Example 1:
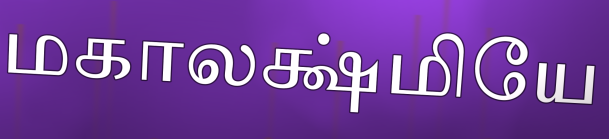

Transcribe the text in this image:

மகாலக்ஷ்மியே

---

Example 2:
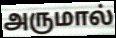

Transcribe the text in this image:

அருமால்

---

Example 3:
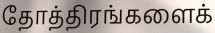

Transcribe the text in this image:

தோத்திரங்களைக்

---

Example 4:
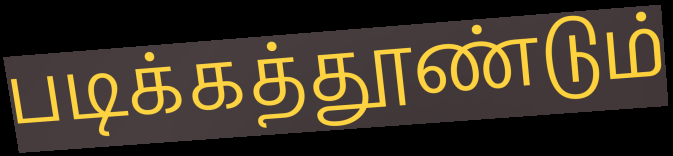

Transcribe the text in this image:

படிக்கத்தூண்டும்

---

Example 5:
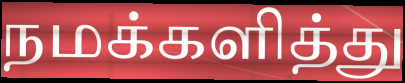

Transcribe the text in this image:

நமக்களித்து